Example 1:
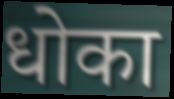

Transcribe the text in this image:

धोका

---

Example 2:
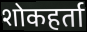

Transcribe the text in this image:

शोकहर्ता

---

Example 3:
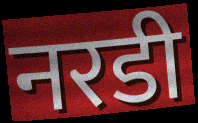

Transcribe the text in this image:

नरडी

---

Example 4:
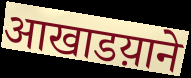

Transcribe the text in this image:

आखाडय़ाने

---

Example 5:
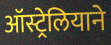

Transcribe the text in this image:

ऑस्ट्रेलियाने